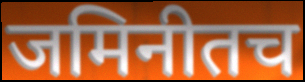
जमिनीतच